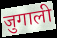
जुगाली